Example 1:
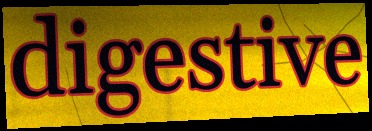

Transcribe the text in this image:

digestive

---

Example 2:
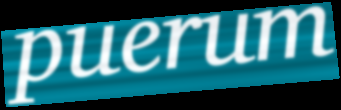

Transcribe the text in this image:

puerum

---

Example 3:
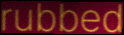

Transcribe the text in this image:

rubbed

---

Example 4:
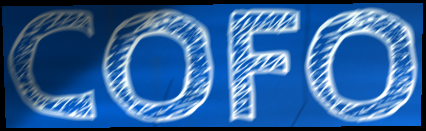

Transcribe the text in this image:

COFO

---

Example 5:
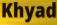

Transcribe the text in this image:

Khyad